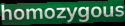
homozygous